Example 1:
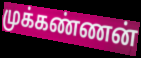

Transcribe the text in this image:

முக்கண்ணன்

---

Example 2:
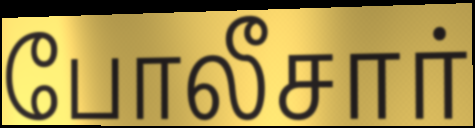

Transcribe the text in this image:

போலீசார்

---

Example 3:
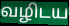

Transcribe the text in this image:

வழிடய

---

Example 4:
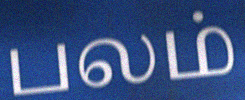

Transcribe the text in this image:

பலம்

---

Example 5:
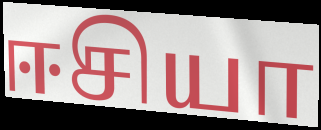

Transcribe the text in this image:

ஈசியா